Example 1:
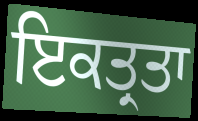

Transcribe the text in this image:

ਇਕਤ੍ਰਤਾ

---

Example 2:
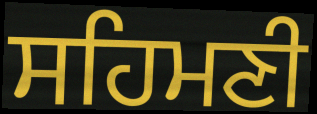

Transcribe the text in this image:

ਸਹਿਮਣੀ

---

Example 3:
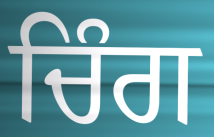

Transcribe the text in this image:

ਚਿੰਗ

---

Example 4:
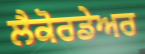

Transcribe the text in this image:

ਲੈਕੋਰਡੇਅਰ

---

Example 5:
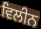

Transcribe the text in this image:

ਵਿਲੀਨ